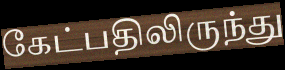
கேட்பதிலிருந்து